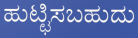
ಹುಟ್ಟಿಸಬಹುದು